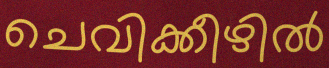
ചെവിക്കീഴിൽ